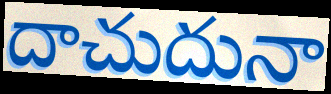
దాచుదునా